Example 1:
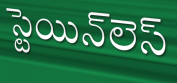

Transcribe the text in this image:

స్టెయిన్‌లెస్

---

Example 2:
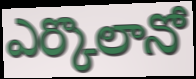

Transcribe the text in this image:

ఎర్కొలానో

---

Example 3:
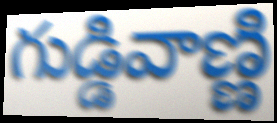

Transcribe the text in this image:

గుడ్డివాణ్ణి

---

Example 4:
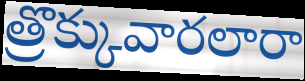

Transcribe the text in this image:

త్రొక్కువారలారా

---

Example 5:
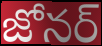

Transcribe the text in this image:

జోనర్